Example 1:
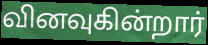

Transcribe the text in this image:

வினவுகின்றார்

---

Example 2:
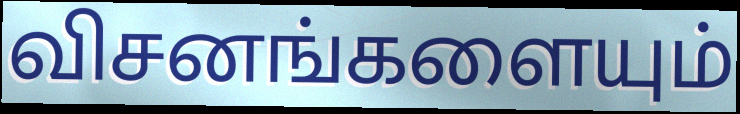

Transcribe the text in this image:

விசனங்களையும்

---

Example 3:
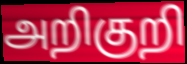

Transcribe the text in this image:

அறிகுறி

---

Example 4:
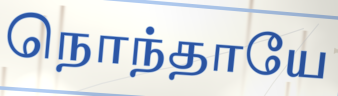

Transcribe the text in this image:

நொந்தாயே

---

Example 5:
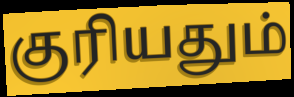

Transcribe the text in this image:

குரியதும்